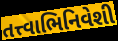
તત્ત્વાભિનિવેશી